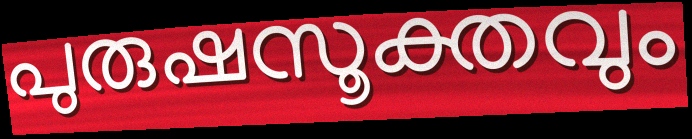
പുരുഷസൂക്തവും